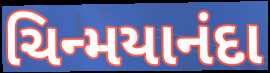
ચિન્મયાનંદા